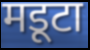
मडूटा